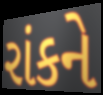
રાંકને